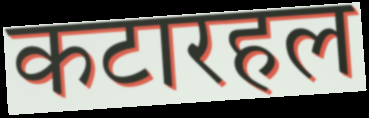
कटारहल